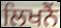
ਲਿਖਨੈਂ